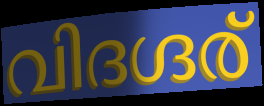
വിദഗ്ദര്